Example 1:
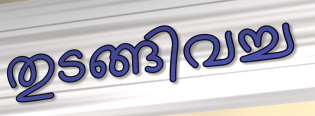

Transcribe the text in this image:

തുടങ്ങിവച്ച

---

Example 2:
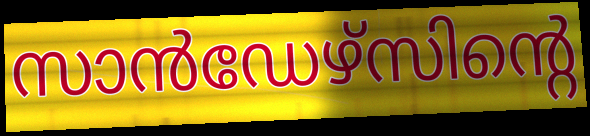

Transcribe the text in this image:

സാൻഡേഴ്സിന്റെ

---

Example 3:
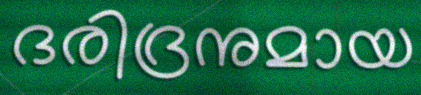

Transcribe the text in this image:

ദരിദ്രനുമായ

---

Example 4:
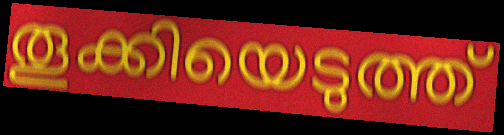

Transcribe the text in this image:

തൂക്കിയെടുത്ത്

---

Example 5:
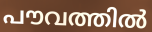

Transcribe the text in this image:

പൗവത്തിൽ